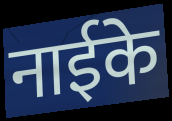
नाईके